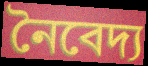
নৈবেদ্য